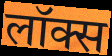
लॉक्स